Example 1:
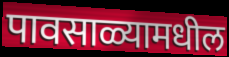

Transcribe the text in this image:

पावसाळ्यामधील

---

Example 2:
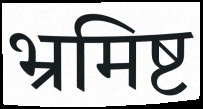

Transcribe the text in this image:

भ्रमिष्ट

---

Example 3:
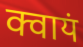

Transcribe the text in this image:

क्वायं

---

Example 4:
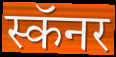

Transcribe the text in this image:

स्कॅनर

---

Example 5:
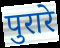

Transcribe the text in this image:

पुरारे